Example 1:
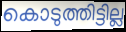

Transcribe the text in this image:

കൊടുത്തിട്ടില്ല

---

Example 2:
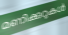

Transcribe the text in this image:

മണിക്കുറുകൾ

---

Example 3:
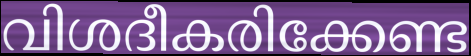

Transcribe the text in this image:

വിശദീകരിക്കേണ്ട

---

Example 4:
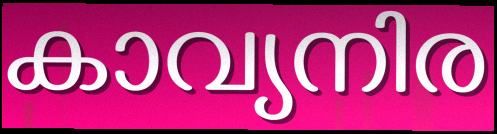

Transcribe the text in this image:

കാവ്യനിര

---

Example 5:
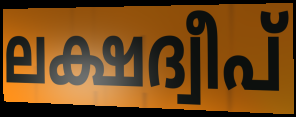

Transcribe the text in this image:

ലക്ഷദ്വീപ്